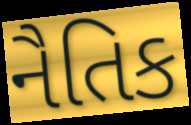
નૈતિક